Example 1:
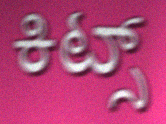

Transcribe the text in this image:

ಕಿಟ್ಸ್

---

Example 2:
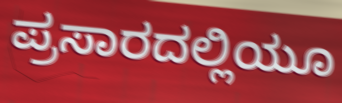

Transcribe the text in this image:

ಪ್ರಸಾರದಲ್ಲಿಯೂ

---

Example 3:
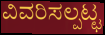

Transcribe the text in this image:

ವಿವರಿಸಲ್ಪಟ್ಟ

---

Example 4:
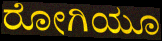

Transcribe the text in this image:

ರೋಗಿಯೂ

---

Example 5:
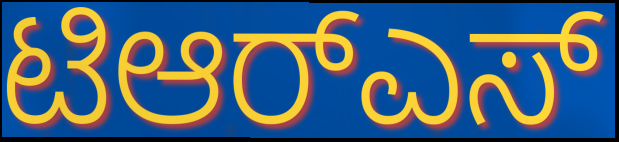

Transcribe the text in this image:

ಟಿಆರ್‌ಎಸ್